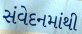
સંવેદનમાંથી